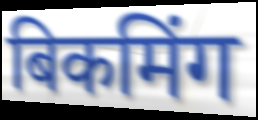
बिकमिंग